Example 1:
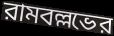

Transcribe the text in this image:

রামবল্লভের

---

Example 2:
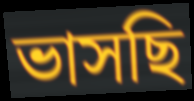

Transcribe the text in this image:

ভাসছি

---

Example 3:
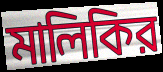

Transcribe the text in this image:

মালিকির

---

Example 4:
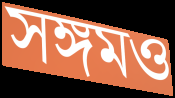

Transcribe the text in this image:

সঙ্গমও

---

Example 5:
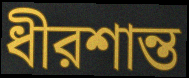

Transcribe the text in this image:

ধীরশান্ত